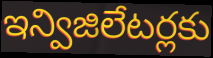
ఇన్విజిలేటర్లకు